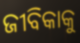
ଜୀବିକାକୁ